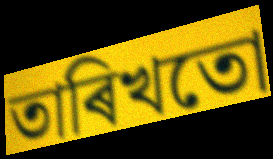
তাৰিখতো